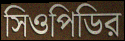
সিওপিডির